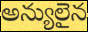
అన్యులైన